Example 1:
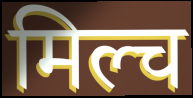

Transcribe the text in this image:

मिल्च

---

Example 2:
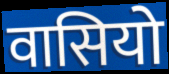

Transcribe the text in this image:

वासियो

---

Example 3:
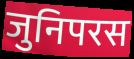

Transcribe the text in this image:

जुनिपरस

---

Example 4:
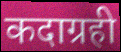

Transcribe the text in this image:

कदाग्रही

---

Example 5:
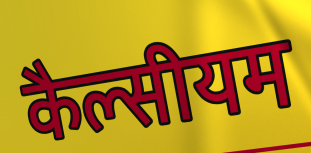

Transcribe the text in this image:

कैल्सीयम